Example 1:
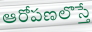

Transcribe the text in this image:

ఆరోపణలొస్తే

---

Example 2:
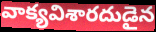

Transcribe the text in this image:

వాక్యవిశారదుడైన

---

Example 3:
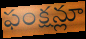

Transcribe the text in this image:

ఫంక్షన్లూ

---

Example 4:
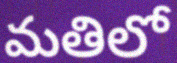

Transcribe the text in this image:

మతిలో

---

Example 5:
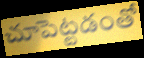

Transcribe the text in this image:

చూపెట్టడంతో